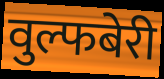
वुल्फबेरी